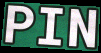
PIN